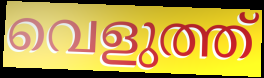
വെളുത്ത്